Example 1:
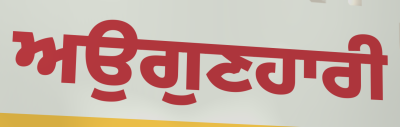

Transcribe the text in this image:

ਅਉਗੁਣਹਾਰੀ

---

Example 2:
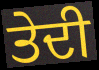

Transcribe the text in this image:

ਤੇਦੀ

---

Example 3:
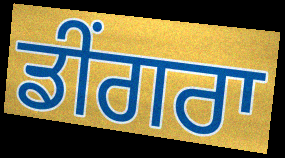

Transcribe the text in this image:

ਡੀਂਗਰਾ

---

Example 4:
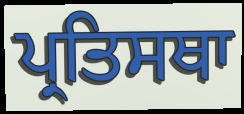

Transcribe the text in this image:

ਪ੍ਰਤਿਸਥਾ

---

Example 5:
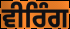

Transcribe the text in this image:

ਵੀਰਿੰਗ